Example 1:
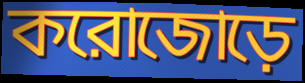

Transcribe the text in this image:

করোজোড়ে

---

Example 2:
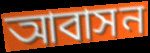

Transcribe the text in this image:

আবাসন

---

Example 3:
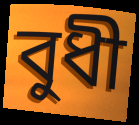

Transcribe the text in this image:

বুধী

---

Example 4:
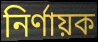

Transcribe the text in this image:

নির্ণায়ক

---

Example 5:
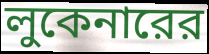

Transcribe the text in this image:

লুকেনারের